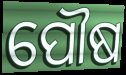
ପୌଷ